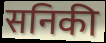
सनिकी